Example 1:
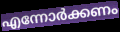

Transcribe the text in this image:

എന്നോർക്കണം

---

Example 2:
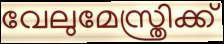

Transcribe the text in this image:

വേലുമേസ്ത്രിക്ക്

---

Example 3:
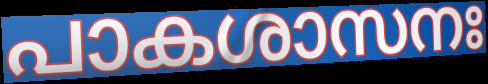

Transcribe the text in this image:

പാകശാസനഃ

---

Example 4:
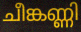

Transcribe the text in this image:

ചീങ്കണ്ണി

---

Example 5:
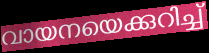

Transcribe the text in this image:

വായനയെക്കുറിച്ച്